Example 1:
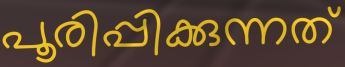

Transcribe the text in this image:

പൂരിപ്പിക്കുന്നത്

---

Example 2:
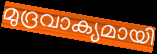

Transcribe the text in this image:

മുദ്രവാക്യമായി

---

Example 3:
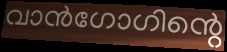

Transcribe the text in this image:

വാൻഗോഗിന്റെ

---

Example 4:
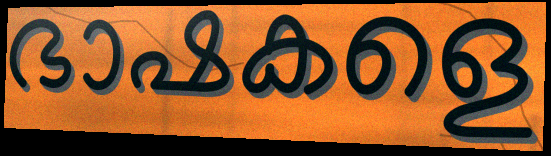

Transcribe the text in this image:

ഭാഷകളെ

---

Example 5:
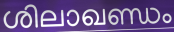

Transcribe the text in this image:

ശിലാഖണ്ഡം